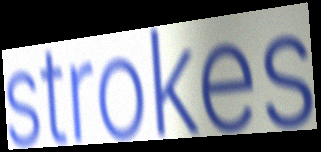
strokes